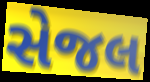
સેજલ